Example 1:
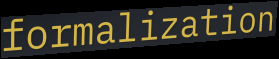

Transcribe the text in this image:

formalization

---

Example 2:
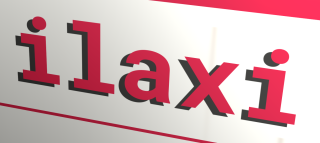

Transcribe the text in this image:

ilaxi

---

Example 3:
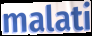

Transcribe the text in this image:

malati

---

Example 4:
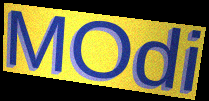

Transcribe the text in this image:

MOdi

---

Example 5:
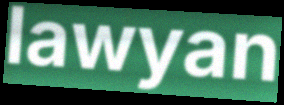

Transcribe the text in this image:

lawyan